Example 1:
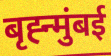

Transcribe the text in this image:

बृह्न्मुंबई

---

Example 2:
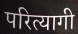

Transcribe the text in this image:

परित्यागी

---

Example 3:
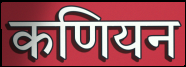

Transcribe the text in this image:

कणियन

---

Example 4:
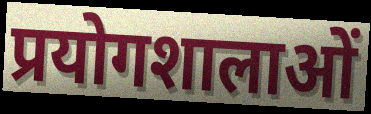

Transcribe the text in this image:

प्रयोगशालाओं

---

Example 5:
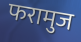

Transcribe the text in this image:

फरामुज